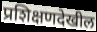
प्रशिक्षणदेखील